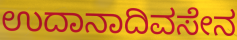
ಉದಾನಾದಿವಸೇನ